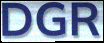
DGR